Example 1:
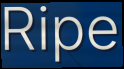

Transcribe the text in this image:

Ripe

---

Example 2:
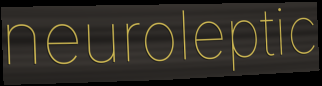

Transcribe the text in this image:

neuroleptic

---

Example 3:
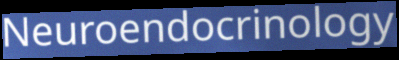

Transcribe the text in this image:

Neuroendocrinology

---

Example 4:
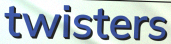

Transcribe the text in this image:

twisters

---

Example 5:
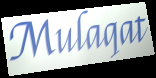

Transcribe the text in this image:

Mulaqat